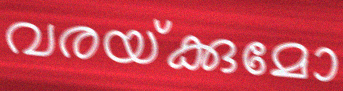
വരയ്‌ക്കുമോ